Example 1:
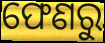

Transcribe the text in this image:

ଫେଣରୁ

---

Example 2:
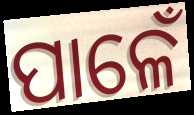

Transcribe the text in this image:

ପାଳେଁ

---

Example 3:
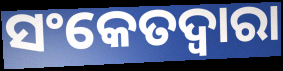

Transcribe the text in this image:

ସଂକେତଦ୍ୱାରା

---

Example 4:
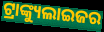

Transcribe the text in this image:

ଟ୍ରାଙ୍କ୍ୟୁଲାଇଜର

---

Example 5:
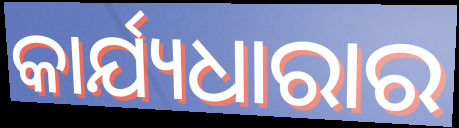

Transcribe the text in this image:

କାର୍ଯ୍ୟଧାରାର